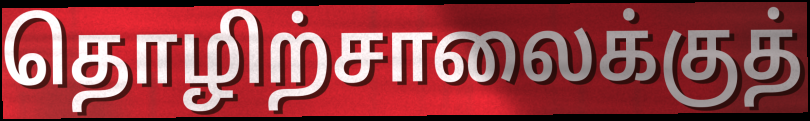
தொழிற்சாலைக்குத்